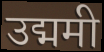
उद्ममी